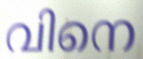
വിനെ